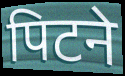
पिटने